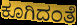
ಕೂಗಿದಂತೆ